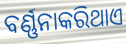
ବର୍ଣ୍ଣନାକରିଥାଏ